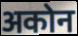
अकोन